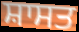
ਸ਼ਾਸਤ